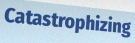
Catastrophizing